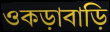
ওকড়াবাড়ি